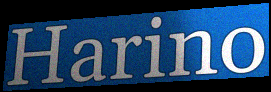
Harino